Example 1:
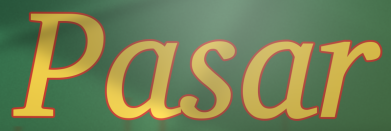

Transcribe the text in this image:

Pasar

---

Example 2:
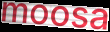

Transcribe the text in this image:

moosa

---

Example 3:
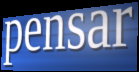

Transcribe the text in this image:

pensar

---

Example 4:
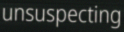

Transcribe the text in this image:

unsuspecting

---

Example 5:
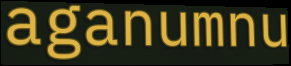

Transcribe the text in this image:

aganumnu